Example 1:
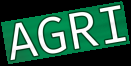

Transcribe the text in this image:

AGRI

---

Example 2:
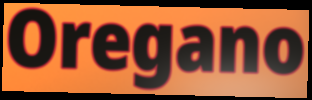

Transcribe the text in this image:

Oregano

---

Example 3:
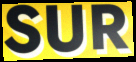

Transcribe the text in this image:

SUR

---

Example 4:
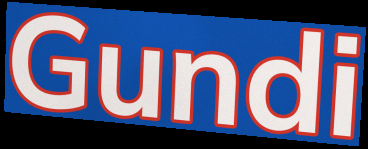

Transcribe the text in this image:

Gundi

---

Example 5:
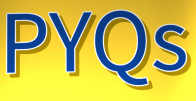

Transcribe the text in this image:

PYQs